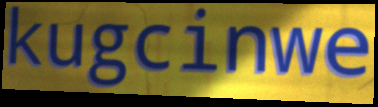
kugcinwe